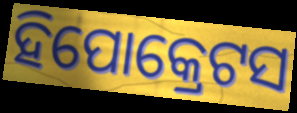
ହିପୋକ୍ରେଟସ